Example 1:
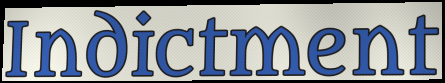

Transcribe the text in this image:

Indictment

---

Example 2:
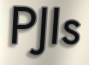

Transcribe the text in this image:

PJIs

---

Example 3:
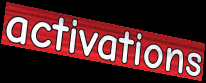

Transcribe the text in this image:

activations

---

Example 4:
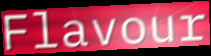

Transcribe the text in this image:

Flavour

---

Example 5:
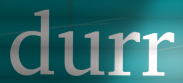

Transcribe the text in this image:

durr